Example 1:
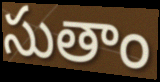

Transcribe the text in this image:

సుతాం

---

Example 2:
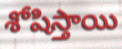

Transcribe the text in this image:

శోషిస్తాయి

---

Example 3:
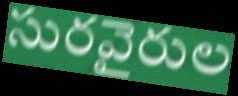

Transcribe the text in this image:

సురవైరుల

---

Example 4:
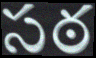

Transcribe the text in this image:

సఠ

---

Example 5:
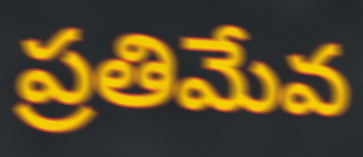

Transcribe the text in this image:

ప్రతిమేవ